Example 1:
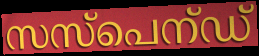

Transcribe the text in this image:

സസ്പെന്ഡ്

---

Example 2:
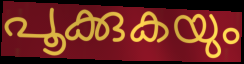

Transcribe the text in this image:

പൂക്കുകയും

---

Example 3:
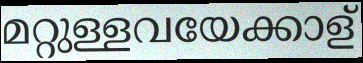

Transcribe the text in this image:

മറ്റുള്ളവയേക്കാള്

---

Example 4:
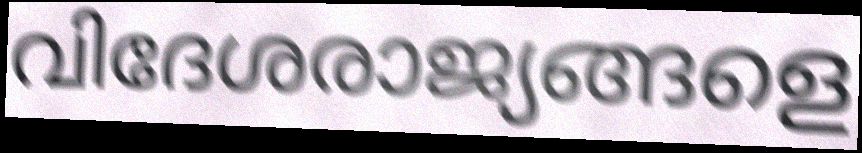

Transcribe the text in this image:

വിദേശരാജ്യങ്ങളെ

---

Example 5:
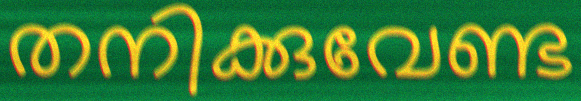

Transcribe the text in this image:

തനിക്കുവേണ്ട